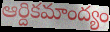
ఆర్దికమాంద్యం